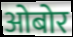
ओबोर